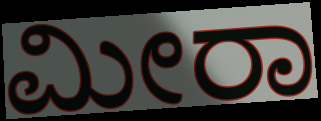
ಮೀರಾ